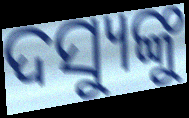
ଦସ୍ୟୁଙ୍କୁ